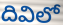
దివిలో